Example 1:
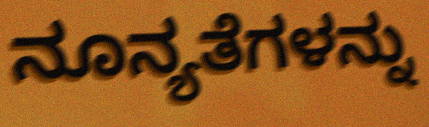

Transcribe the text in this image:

ನೂನ್ಯತೆಗಳನ್ನು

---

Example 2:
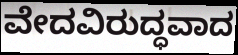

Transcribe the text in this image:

ವೇದವಿರುದ್ಧವಾದ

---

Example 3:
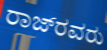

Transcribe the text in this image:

ರಾಜ್‌ರವರು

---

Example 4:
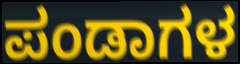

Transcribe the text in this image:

ಪಂಡಾಗಳ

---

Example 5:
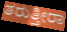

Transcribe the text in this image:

ತರುತ್ತೀರಾ